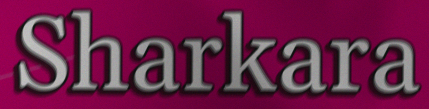
Sharkara